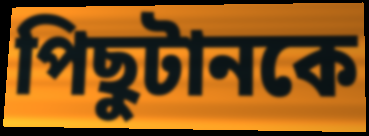
পিছুটানকে